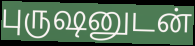
புருஷனுடன்